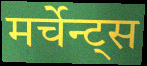
मर्चेन्ट्स